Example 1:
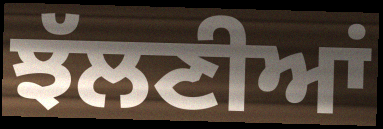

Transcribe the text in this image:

ਝੱਲਣੀਆਂ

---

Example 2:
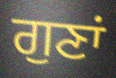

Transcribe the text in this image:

ਗੁਣਾਂ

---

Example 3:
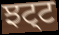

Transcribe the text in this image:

ਝਟ੍ਟ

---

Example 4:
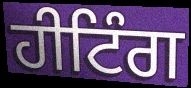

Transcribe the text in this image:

ਹੀਟਿੰਗ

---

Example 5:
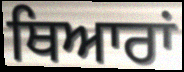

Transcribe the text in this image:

ਥਿਆਰਾਂ